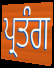
ਪ੍ਰਤੰਗ